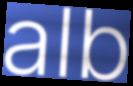
alb